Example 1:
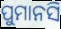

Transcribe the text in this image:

ପୁମାନସି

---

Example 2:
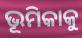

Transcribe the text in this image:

ଭୂମିକାକୁ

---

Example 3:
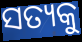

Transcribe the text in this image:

ସତ୍ୟକୁ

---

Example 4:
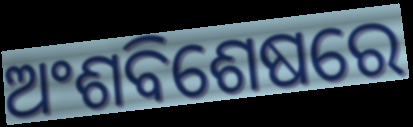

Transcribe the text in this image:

ଅଂଶବିଶେଷରେ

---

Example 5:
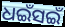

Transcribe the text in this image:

ଧଇଁସଇଁ